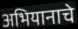
अभियानाचे